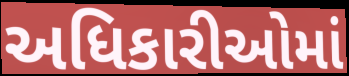
અધિકારીઓમાં